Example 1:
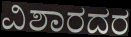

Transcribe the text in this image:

ವಿಶಾರದರ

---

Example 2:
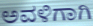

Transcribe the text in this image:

ಅವಳಿಗಾಗಿ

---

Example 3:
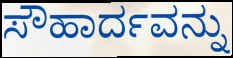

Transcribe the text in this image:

ಸೌಹಾರ್ದವನ್ನು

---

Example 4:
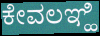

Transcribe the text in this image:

ಕೇವಲಞ್ಹಿ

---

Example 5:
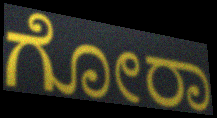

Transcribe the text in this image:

ಗೋರಾ